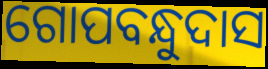
ଗୋପବନ୍ଧୁଦାସ